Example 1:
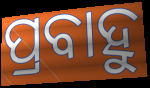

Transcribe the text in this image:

ପ୍ରବାହୁ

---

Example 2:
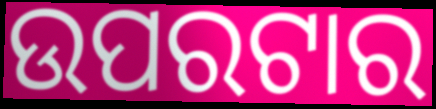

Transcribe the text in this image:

ଉପରଟାର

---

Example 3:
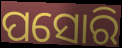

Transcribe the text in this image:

ପସୋରି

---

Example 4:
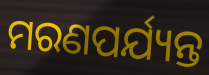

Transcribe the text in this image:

ମରଣପର୍ଯ୍ୟନ୍ତ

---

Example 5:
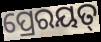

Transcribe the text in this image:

ପ୍ରେରୟତ୍